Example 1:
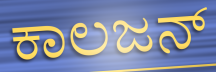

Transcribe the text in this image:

ಕಾಲಜನ್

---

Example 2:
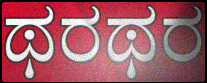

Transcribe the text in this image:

ಥರಥರ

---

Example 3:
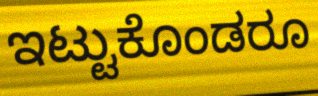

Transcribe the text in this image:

ಇಟ್ಟುಕೊಂಡರೂ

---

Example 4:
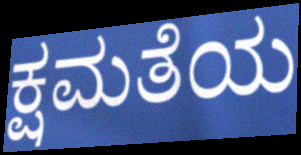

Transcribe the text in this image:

ಕ್ಷಮತೆಯ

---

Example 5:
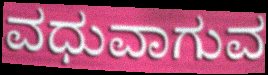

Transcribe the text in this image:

ವಧುವಾಗುವ